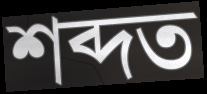
শব্দত